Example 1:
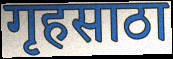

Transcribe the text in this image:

गृहसाठा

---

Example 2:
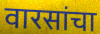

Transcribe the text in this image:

वारसांचा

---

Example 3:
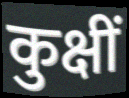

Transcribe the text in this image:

कुक्षीं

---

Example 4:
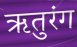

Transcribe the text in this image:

ऋतुरंग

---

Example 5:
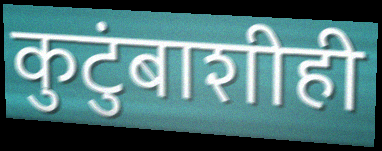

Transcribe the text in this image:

कुटुंबाशीही